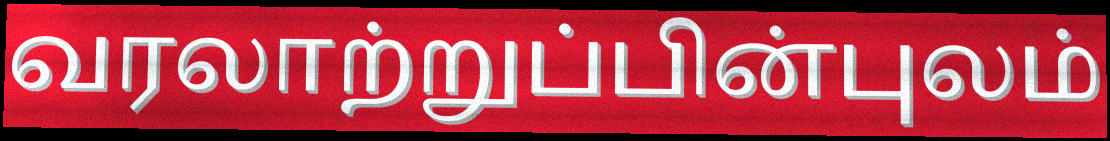
வரலாற்றுப்பின்புலம்